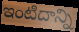
ఇంటిదాన్ని